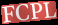
FCPL